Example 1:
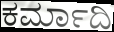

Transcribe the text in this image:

ಕರ್ಮಾದಿ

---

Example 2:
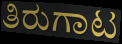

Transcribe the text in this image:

ತಿರುಗಾಟ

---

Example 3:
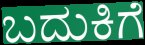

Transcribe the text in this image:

ಬದುಕಿಗೆ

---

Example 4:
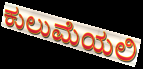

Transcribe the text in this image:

ಕುಲುಮೆಯಲಿ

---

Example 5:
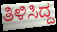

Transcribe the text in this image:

ತಿಳಿಸಿದ್ದ